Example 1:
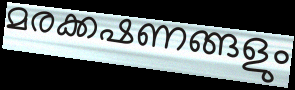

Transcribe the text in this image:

മരക്കഷണങ്ങളും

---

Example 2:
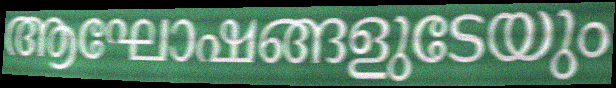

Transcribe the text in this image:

ആഘോഷങ്ങളുടേയും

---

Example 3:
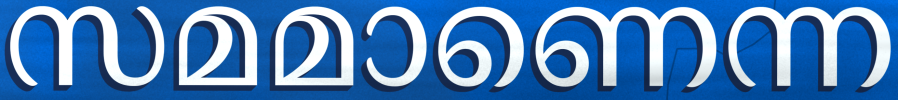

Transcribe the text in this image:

സമമാണെന്ന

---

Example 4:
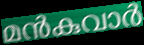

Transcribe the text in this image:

മൻകുവാർ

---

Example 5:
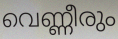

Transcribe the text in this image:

വെണ്ണീരും